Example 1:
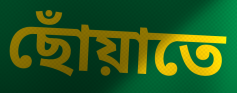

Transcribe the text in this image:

ছোঁয়াতে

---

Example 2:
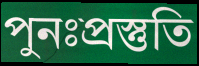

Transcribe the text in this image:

পুনঃপ্রস্তুতি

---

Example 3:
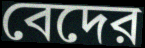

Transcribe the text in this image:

বেদের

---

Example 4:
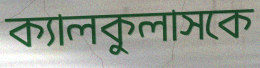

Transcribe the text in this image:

ক্যালকুলাসকে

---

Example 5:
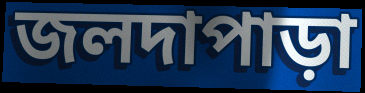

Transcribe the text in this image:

জলদাপাড়া